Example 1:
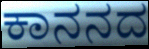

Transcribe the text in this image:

ಕಾನನದ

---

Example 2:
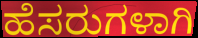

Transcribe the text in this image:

ಹೆಸರುಗಳಾಗಿ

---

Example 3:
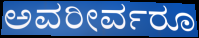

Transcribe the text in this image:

ಅವರೀರ್ವರೂ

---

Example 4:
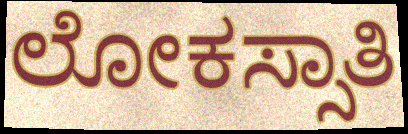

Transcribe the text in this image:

ಲೋಕಸ್ಸಾತಿ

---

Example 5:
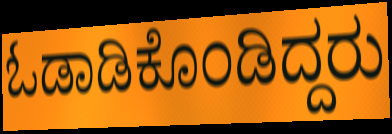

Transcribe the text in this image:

ಓಡಾಡಿಕೊಂಡಿದ್ದರು